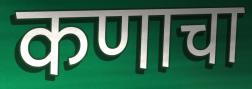
कणाचा